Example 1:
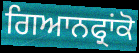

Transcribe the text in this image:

ਗਿਆਨਫ੍ਰਾਂਕੋ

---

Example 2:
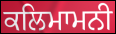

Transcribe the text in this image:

ਕਲਿਮਾਮਨੀ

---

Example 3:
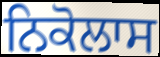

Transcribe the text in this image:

ਨਿਕੋਲਾਸ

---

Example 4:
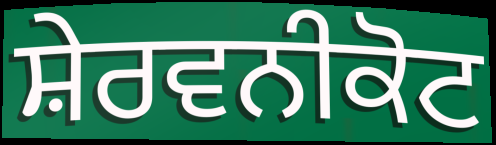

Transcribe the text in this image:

ਸ਼ੇਰਵਨੀਕੋਟ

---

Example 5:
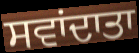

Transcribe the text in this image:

ਸਵਾਂਦਾਤਾ